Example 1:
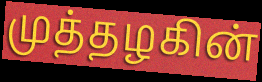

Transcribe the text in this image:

முத்தழகின்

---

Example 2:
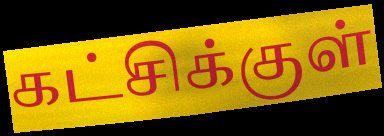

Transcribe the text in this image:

கட்சிக்குள்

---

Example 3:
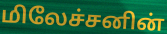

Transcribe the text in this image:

மிலேச்சனின்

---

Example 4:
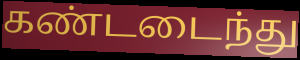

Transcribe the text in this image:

கண்டடைந்து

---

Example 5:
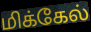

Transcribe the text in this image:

மிக்கேல்